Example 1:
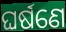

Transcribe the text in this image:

ଘର୍ଷଣେ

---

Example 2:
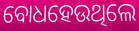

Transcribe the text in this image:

ବୋଧହେଉଥିଲେ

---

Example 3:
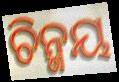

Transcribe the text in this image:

ଚିନ୍ମୟ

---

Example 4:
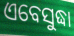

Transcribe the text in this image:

ଏବେସୁଦ୍ଧା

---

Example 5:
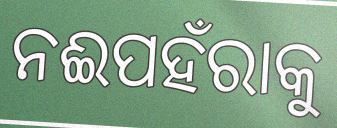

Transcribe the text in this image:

ନଈପହଁରାକୁ